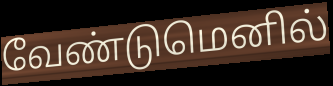
வேண்டுமெனில்